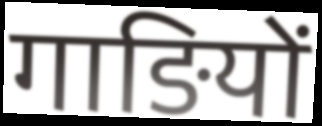
गाङियों